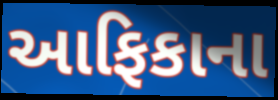
આફિકાના